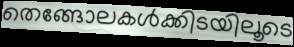
തെങ്ങോലകൾക്കിടയിലൂടെ